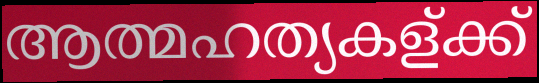
ആത്മഹത്യകള്ക്ക്